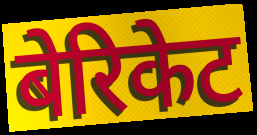
बेरिकेट